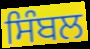
ਸਿੰਬਲ